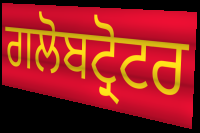
ਗਲੋਬਟ੍ਰੋਟਰ